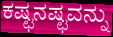
ಕಷ್ಟನಷ್ಟವನ್ನು